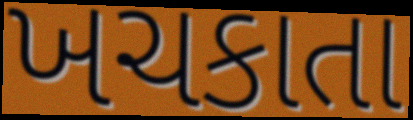
ખચકાતા